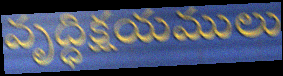
వృద్ధిక్షయములు